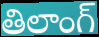
తిలాంగ్